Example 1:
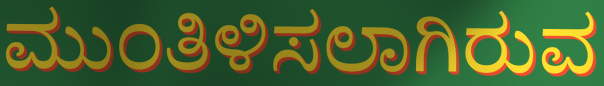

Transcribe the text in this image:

ಮುಂತಿಳಿಸಲಾಗಿರುವ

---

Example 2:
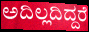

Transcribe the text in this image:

ಅದಿಲ್ಲದಿದ್ದರೆ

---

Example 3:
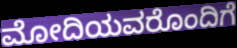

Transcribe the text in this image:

ಮೋದಿಯವರೊಂದಿಗೆ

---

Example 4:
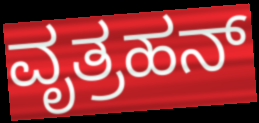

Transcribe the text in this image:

ವೃತ್ರಹನ್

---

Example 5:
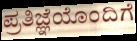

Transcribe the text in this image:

ಪ್ರತಿಜ್ಞೆಯೊಂದಿಗೆ